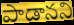
పాడానని